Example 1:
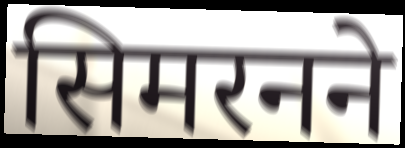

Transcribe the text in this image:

सिमरनने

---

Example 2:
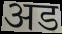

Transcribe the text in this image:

अड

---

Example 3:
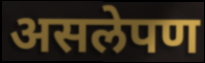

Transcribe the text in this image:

असलेपण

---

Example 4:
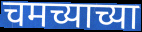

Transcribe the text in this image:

चमच्याच्या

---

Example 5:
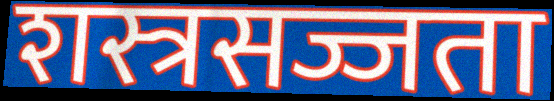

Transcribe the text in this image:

शस्त्रसज्जता